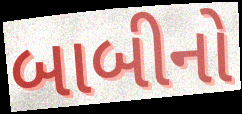
બાબીનો